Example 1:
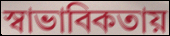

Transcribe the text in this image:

স্বাভাবিকতায়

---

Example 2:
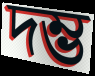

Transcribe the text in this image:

দম্ভ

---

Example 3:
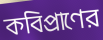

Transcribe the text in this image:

কবিপ্রাণের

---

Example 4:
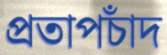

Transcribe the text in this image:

প্রতাপচাঁদ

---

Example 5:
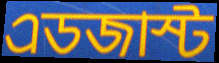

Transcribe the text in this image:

এডজাস্ট